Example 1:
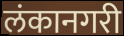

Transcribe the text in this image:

लंकानगरी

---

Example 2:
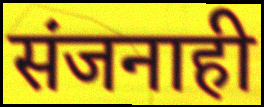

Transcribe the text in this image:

संजनाही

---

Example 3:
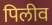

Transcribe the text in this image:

पिलीव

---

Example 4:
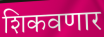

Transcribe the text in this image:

शिकवणार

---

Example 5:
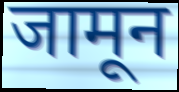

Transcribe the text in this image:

जामून